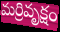
మర్రివృక్షం